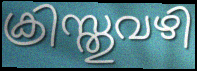
ക്രിസ്തുവഴി